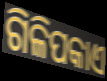
ଗିଳିପକାଏ